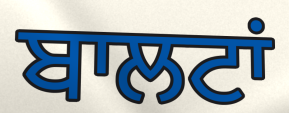
ਬਾਲਟਾਂ